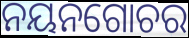
ନୟନଗୋଚର